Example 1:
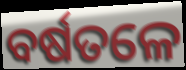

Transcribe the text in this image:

ବର୍ଷତଳେ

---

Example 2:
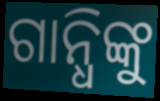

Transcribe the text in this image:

ଗାନ୍ଧିଙ୍କୁ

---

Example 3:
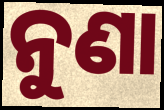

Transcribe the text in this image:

ନୁଣା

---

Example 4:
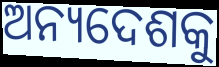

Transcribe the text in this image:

ଅନ୍ୟଦେଶକୁ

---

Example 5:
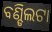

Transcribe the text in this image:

ବଣ୍ଡିଲଟା